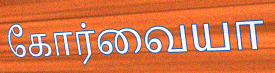
கோர்வையா